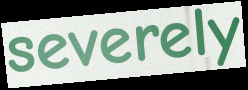
severely